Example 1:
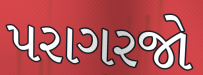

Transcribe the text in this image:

પરાગરજો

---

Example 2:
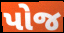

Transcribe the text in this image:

પોજ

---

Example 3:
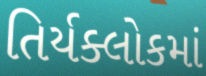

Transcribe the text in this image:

તિર્યક્લોકમાં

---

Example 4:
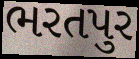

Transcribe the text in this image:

ભરતપુર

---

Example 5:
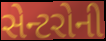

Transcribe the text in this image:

સેન્ટરોની